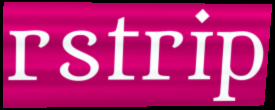
rstrip